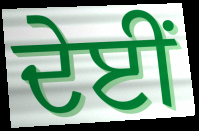
ਦੇਈਂ